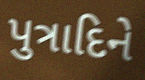
પુત્રાદિને